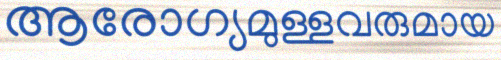
ആരോഗ്യമുള്ളവരുമായ